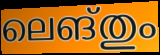
ലെങ്തും